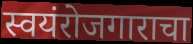
स्वयंरोजगाराचा